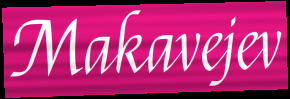
Makavejev